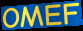
OMEF